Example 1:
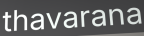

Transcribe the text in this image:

thavarana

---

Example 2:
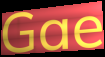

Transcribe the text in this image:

Gae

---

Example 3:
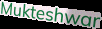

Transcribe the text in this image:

Mukteshwar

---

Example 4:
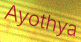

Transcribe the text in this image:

Ayothya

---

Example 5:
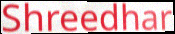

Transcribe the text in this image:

Shreedhar